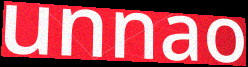
unnao